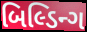
બિલ્ડિન્ગ